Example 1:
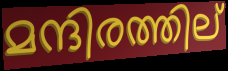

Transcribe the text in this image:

മന്ദിരത്തില്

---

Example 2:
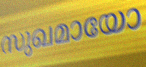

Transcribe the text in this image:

സുഖമായോ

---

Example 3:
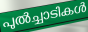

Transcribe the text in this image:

പുൽച്ചാടികൾ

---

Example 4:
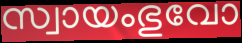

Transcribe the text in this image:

സ്വായംഭുവോ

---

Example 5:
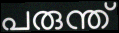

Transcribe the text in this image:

പരുന്ത്